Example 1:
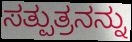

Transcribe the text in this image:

ಸತ್ಪುತ್ರನನ್ನು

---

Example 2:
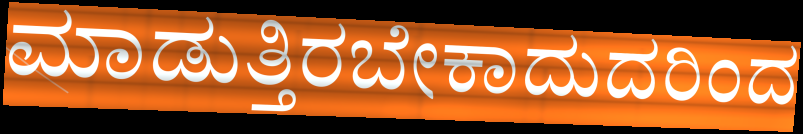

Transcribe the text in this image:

ಮಾಡುತ್ತಿರಬೇಕಾದುದರಿಂದ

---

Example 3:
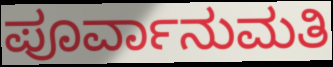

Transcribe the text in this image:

ಪೂರ್ವಾನುಮತಿ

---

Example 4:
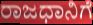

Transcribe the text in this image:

ರಾಜಧಾನಿಗೆ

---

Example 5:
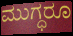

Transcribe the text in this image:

ಮುಗ್ಧರೂ